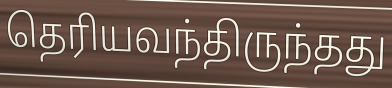
தெரியவந்திருந்தது